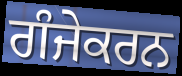
ਗੰਜੇਕਰਨ